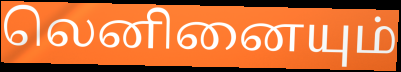
லெனினையும்